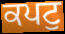
ਕਪਟੁ